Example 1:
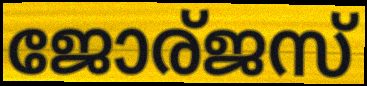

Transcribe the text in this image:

ജോര്ജസ്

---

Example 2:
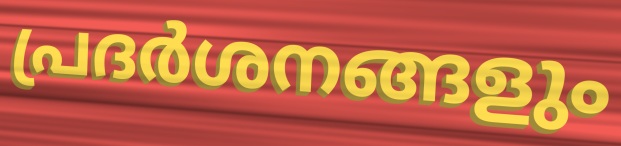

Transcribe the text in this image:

പ്രദർശനങ്ങളും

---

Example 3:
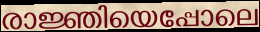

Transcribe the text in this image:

രാജ്ഞിയെപ്പോലെ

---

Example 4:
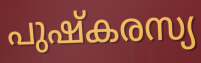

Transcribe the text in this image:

പുഷ്കരസ്യ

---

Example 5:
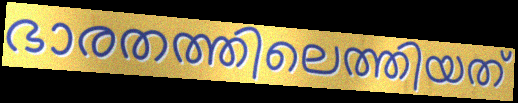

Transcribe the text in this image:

ഭാരതത്തിലെത്തിയത്